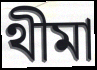
থীমা